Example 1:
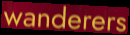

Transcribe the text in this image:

wanderers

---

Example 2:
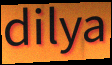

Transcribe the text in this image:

dilya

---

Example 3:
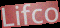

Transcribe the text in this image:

Lifco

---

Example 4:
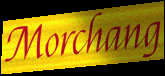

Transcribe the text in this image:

Morchang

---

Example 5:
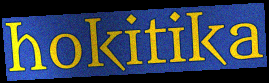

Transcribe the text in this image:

hokitika